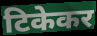
टिकेकर